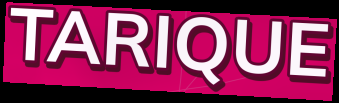
TARIQUE